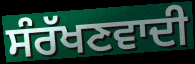
ਸੰਰੱਖਣਵਾਦੀ